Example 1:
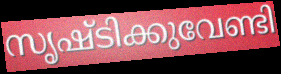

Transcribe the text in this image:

സൃഷ്ടിക്കുവേണ്ടി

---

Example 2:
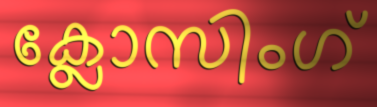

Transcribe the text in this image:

ക്ലോസിംഗ്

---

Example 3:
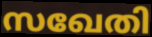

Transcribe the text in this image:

സഖേതി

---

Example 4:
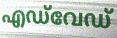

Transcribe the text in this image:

എഡ്‌വേഡ്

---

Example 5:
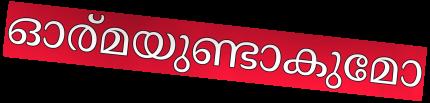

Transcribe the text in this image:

ഓര്മയുണ്ടാകുമോ